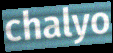
chalyo